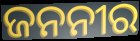
ଜନନୀର